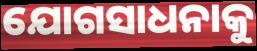
ଯୋଗସାଧନାକୁ